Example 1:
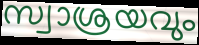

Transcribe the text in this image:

സ്വാശ്രയവും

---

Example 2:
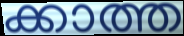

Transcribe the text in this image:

ക്കാത്ത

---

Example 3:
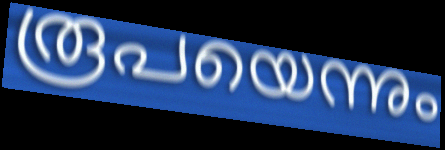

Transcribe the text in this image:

രൂപയെന്നും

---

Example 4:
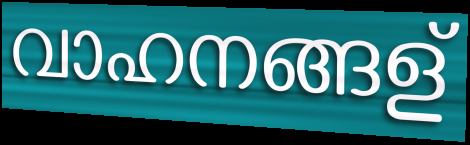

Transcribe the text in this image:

വാഹനങ്ങള്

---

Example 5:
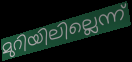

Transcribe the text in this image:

മുറിയിലില്ലെന്ന്